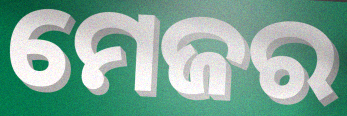
ମେଜର